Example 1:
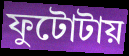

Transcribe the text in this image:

ফুটোটায়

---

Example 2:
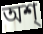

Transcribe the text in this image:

অশ্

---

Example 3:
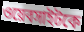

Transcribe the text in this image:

ওয়েবসাইটকে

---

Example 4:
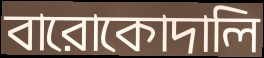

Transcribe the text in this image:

বারোকোদালি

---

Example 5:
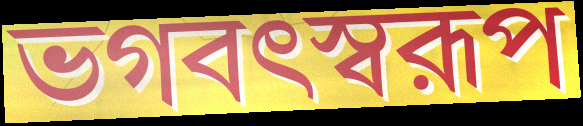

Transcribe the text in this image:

ভগবৎস্বরূপ